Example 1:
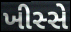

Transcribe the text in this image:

ખીસ્સે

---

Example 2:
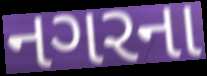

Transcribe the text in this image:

નગરના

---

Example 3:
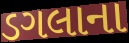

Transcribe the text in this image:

ડગલાના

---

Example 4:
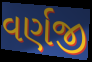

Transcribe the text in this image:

વર્ણજી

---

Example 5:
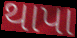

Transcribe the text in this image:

થાપા